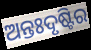
ଅନ୍ତଃଦୃଷ୍ଟିର